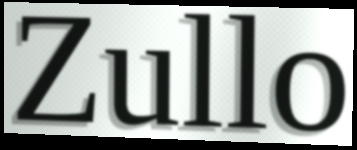
Zullo